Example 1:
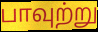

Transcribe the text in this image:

பாவுற்று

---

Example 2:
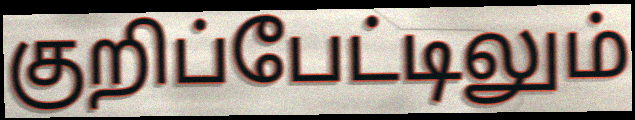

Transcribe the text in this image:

குறிப்பேட்டிலும்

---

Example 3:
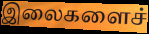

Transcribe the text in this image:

இலைகளைச்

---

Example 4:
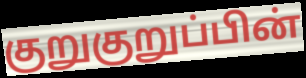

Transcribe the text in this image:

குறுகுறுப்பின்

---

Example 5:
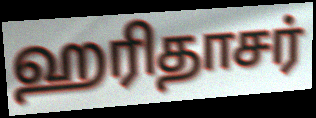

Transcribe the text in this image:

ஹரிதாசர்